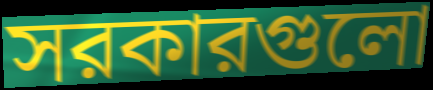
সরকারগুলো